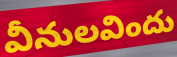
వీనులవిందు